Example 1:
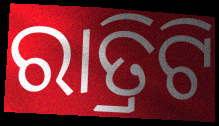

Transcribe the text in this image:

ରାତ୍ରିଟି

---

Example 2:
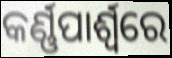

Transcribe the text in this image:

କର୍ଣ୍ଣପାର୍ଶ୍ୱରେ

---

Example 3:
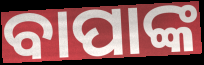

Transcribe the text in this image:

ବାପାଙ୍କ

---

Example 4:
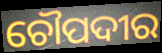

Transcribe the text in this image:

ଚୌପଦୀର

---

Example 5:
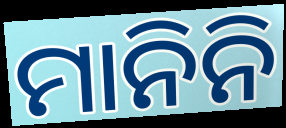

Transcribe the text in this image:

ମାନିନି